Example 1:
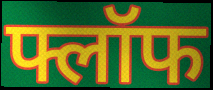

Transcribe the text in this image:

फ्लॉफ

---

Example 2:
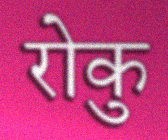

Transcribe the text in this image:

रोकु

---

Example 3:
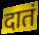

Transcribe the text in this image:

दातं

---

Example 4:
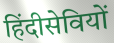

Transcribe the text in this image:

हिंदीसेवियों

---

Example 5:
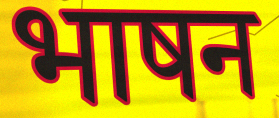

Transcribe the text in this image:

भाषन